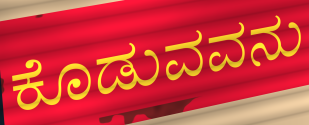
ಕೊಡುವವನು